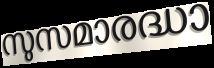
സുസമാരദ്ധാ